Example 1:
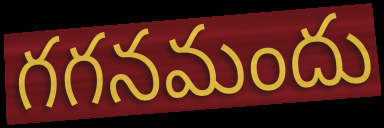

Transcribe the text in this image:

గగనమందు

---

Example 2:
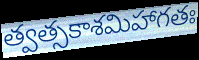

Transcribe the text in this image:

త్వత్సకాశమిహాగతః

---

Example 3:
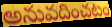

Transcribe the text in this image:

అనువదించటం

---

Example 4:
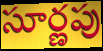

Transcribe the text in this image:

సూర్ణపు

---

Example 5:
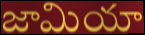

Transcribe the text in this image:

జామియా